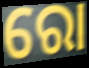
ରୋ